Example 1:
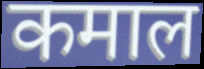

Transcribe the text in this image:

कमाल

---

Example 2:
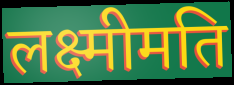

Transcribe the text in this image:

लक्ष्मीमति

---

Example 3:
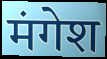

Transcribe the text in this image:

मंगेश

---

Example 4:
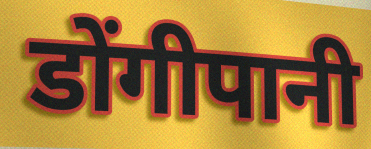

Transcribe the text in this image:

डोंगीपानी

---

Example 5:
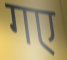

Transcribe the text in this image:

गए